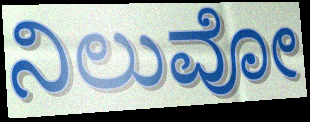
ನಿಲುವೋ